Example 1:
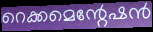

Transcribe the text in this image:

റെക്കമെന്റേഷൻ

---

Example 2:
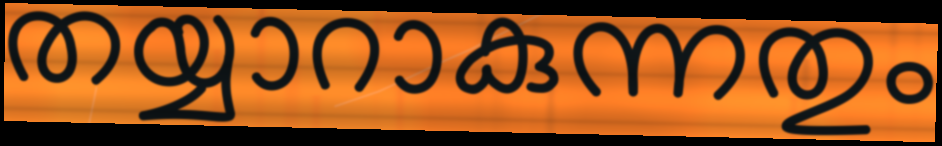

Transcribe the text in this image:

തയ്യാറാകുന്നതും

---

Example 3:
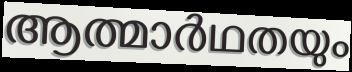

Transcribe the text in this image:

ആത്മാർഥതയും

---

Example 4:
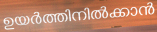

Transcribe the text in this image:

ഉയർത്തിനിൽക്കാൻ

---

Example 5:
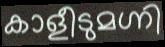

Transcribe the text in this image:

കാളീടുമഗ്നി